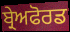
ਬ੍ਰੇਅਫੋਰਡ